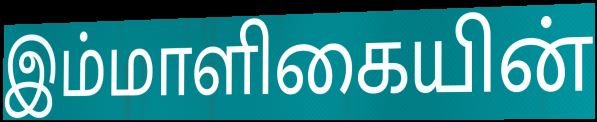
இம்மாளிகையின்